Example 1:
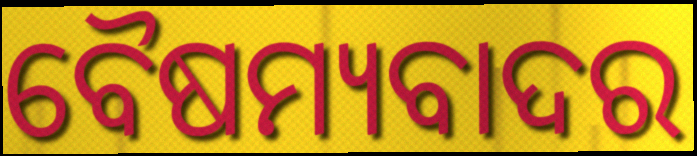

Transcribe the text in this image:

ବୈଷମ୍ୟବାଦର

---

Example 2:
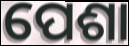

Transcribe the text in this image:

ପେଶା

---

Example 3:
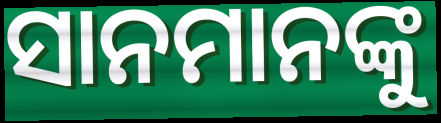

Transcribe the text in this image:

ସାନମାନଙ୍କୁ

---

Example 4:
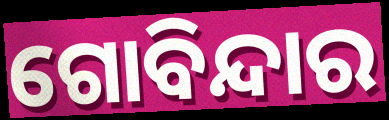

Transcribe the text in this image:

ଗୋବିନ୍ଦାର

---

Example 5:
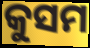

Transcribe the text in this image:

କୁସମ